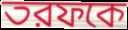
তরফকে